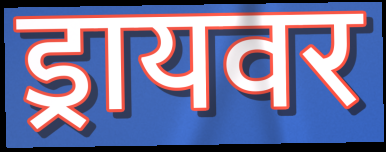
ड्रायवर